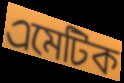
এমেটিক